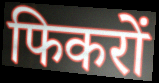
फिकरों